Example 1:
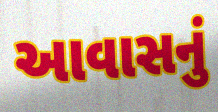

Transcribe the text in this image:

આવાસનું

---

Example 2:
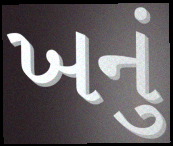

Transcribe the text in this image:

ખનું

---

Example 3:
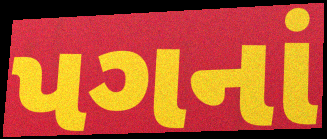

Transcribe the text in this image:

પગનાં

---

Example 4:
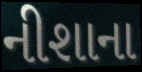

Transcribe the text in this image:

નીશાના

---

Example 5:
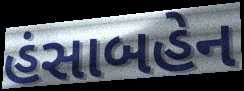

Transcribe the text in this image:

હંસાબહેન